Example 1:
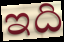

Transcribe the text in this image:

ఇది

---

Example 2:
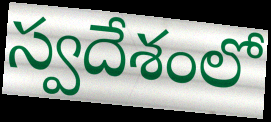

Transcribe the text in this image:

స్వదేశంలో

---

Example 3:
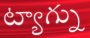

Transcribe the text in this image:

ట్యాగ్ను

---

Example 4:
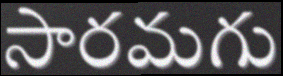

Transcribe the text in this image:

సారమగు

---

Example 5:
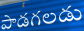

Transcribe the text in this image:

పాడగలడు